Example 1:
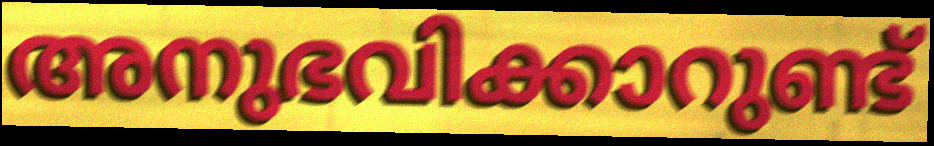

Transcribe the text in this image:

അനുഭവിക്കാറുണ്ട്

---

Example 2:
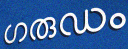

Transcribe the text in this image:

ഗരുഡം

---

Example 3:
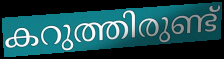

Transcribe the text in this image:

കറുത്തിരുണ്ട്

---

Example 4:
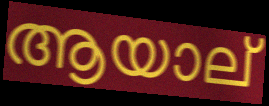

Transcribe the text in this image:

ആയാല്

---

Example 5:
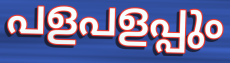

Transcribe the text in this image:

പളപളപ്പും